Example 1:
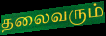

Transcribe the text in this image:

தலைவரும்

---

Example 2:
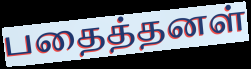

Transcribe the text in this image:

பதைத்தனள்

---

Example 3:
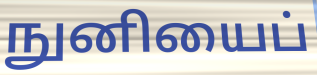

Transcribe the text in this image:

நுனியைப்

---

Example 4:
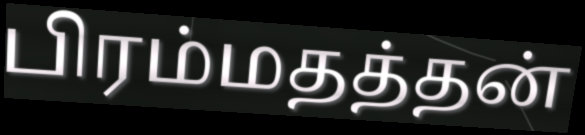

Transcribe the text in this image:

பிரம்மதத்தன்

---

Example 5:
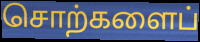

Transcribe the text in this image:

சொற்களைப்